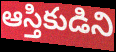
ఆస్తికుడిని